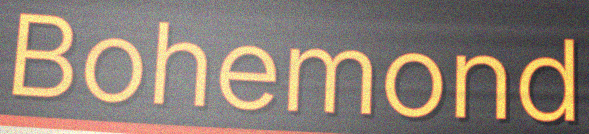
Bohemond